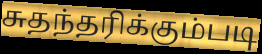
சுதந்தரிக்கும்படி